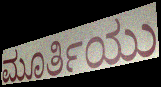
ಮೂರ್ತಿಯು